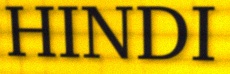
HINDI